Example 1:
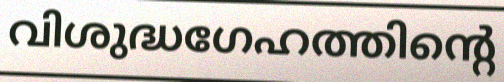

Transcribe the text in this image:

വിശുദ്ധഗേഹത്തിന്റെ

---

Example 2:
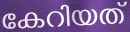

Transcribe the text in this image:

കേറിയത്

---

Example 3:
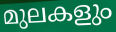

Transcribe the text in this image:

മുലകളും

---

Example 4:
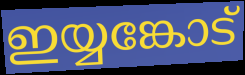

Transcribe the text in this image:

ഇയ്യങ്കോട്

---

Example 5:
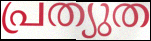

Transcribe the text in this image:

പ്രത്യുത